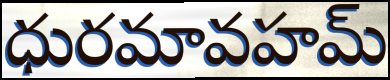
ధురమావహమ్